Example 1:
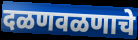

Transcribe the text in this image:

दळणवळणाचे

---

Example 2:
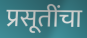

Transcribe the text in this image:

प्रसूतींचा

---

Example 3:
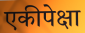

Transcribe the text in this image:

एकीपेक्षा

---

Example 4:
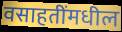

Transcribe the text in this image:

वसाहतींमधील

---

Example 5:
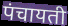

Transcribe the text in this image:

पंचायती